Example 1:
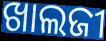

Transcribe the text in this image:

ଖାଲଜୀ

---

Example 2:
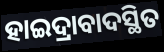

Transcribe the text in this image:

ହାଇଦ୍ରାବାଦସ୍ଥିତ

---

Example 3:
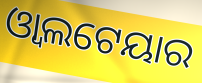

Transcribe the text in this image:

ଓ୍ୱାଲଟେୟାର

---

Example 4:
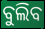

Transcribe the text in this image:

ବୁଲିବ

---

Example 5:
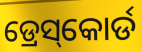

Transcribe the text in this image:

ଡ୍ରେସ୍‌କୋର୍ଡ